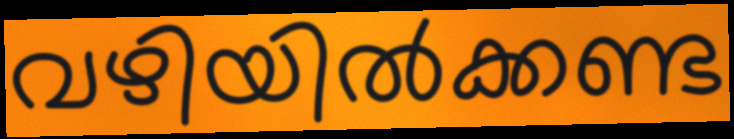
വഴിയിൽക്കണ്ട